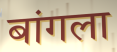
बांगला